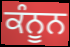
ਕੰਨੂਨ